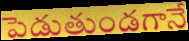
పెడుతుండగానే